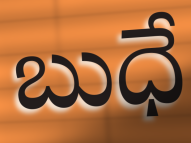
బుధే